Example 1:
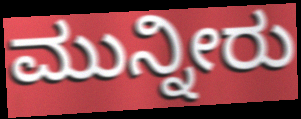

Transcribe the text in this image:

ಮುನ್ನೀರು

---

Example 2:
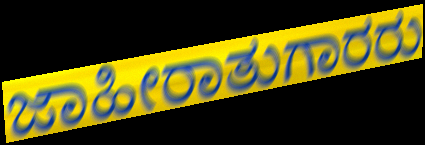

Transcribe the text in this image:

ಜಾಹೀರಾತುಗಾರರು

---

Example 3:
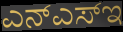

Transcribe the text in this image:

ಎನ್ಎಸ್ಇ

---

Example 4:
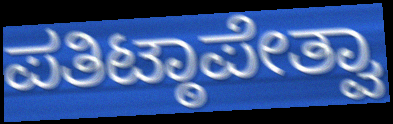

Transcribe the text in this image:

ಪತಿಟ್ಠಾಪೇತ್ವಾ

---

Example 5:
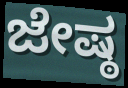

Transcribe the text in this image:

ಜೇಷ್ಠ